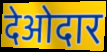
देओदार